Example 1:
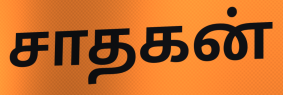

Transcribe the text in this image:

சாதகன்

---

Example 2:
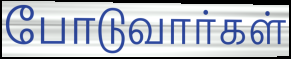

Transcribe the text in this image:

போடுவார்கள்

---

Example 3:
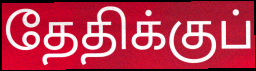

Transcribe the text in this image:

தேதிக்குப்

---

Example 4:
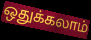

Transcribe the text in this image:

ஒதுக்கலாம்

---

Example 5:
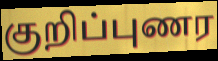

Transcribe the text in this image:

குறிப்புணர